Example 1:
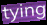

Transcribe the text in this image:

tying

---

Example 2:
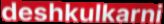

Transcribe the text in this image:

deshkulkarni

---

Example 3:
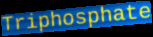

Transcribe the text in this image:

Triphosphate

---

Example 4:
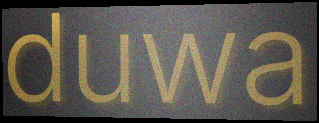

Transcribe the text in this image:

duwa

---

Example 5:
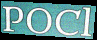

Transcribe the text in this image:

POCl